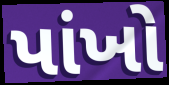
પાંખો